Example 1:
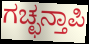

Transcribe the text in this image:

ಗಚ್ಛನ್ತಾಪಿ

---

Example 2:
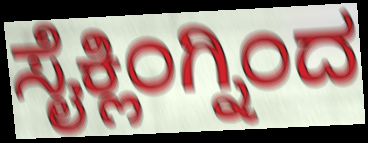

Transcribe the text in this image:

ಸೈಕ್ಲಿಂಗ್ನಿಂದ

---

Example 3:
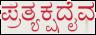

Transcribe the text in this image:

ಪ್ರತ್ಯಕ್ಷದೈವ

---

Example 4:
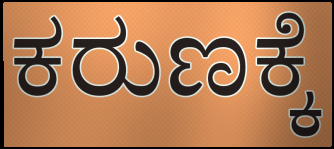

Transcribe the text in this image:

ಕರುಣಕ್ಕೆ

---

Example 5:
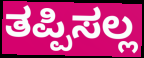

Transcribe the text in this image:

ತಪ್ಪಿಸಲ್ಲ